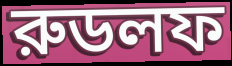
রুডলফ